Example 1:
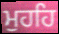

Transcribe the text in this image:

ਮੁਹਹਿ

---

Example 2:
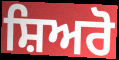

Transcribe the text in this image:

ਸ਼ਿਅਰੋ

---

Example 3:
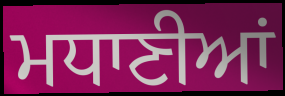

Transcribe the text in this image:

ਮਧਾਣੀਆਂ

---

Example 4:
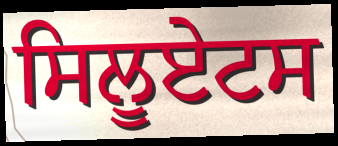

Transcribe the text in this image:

ਸਿਲੂਏਟਸ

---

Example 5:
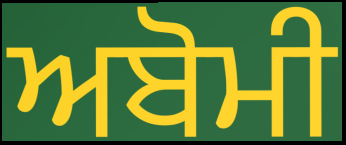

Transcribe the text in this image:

ਅਬੋਮੀ